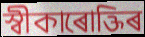
স্বীকাৰোক্তিৰ